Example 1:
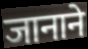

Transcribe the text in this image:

जानाने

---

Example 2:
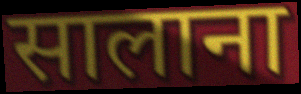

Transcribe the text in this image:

सालाना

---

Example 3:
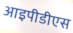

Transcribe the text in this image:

आइपीडीएस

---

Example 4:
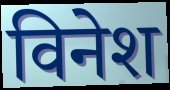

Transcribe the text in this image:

विनेश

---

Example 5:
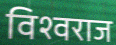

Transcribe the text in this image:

विश्वराज